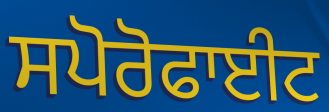
ਸਪੋਰੋਫਾਈਟ